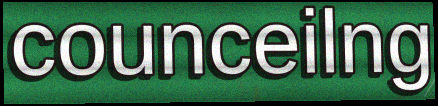
counceilng